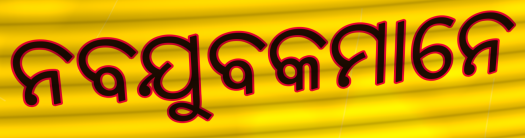
ନବଯୁବକମାନେ